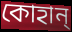
কোহান্